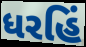
ધરહિં